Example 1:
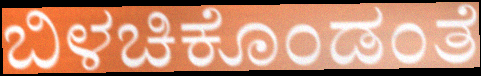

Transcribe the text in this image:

ಬಿಳಚಿಕೊಂಡಂತೆ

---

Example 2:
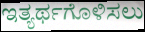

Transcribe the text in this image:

ಇತ್ಯರ್ಥಗೊಳಿಸಲು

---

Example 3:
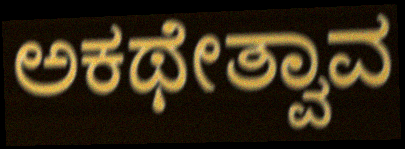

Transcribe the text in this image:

ಅಕಥೇತ್ವಾವ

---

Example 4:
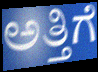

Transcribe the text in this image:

ಅತ್ತಿಗೆ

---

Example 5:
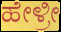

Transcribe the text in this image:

ಹೇಳ್ರೀ